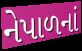
નેપાળનાં